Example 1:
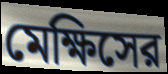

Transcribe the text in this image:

মেক্ষিসের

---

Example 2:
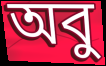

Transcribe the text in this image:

অবু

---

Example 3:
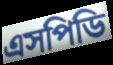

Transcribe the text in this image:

এসপিডি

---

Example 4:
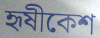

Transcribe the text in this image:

হৃষীকেশ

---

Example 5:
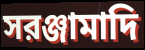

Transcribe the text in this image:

সরঞ্জামাদি